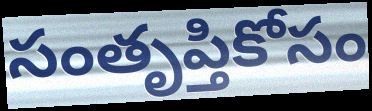
సంతృప్తికోసం